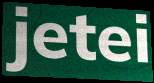
jetei